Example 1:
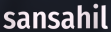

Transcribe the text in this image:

sansahil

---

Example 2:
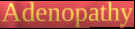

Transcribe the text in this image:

Adenopathy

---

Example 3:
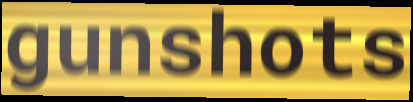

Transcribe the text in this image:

gunshots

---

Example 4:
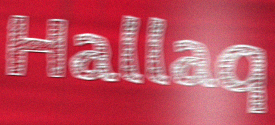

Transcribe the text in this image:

Hallaq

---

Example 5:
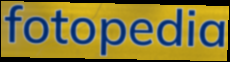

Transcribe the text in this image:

fotopedia